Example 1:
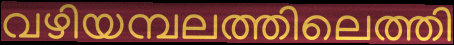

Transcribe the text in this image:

വഴിയമ്പലത്തിലെത്തി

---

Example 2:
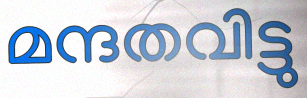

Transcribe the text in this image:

മന്ദതവിട്ടു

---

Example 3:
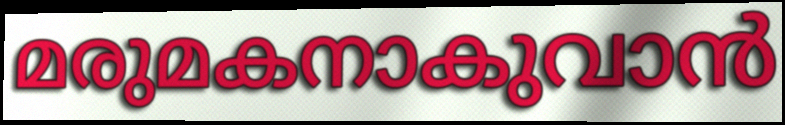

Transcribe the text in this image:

മരുമകനാകുവാൻ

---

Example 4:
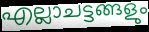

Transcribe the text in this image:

എല്ലാചട്ടങ്ങളും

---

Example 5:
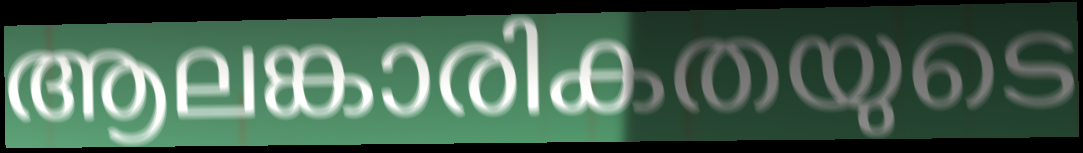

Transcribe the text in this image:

ആലങ്കാരികതയുടെ